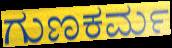
ಗುಣಕರ್ಮ